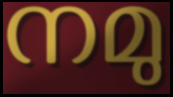
നമു